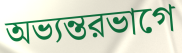
অভ্যন্তরভাগে